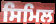
ਸਿਮਿਲ